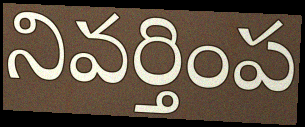
నివర్తింప